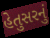
હેતુસરનું